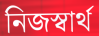
নিজস্বার্থ